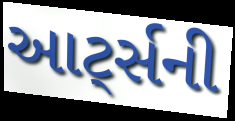
આર્ટ્સની